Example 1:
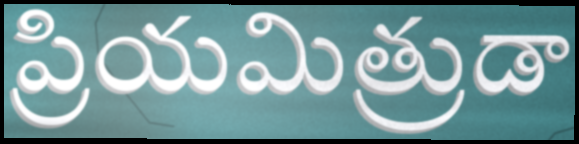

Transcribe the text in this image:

ప్రియమిత్రుడా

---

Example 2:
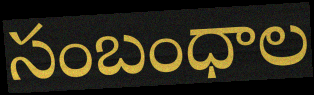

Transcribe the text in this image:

సంబంధాల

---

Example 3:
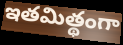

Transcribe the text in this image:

ఇతమిత్థంగా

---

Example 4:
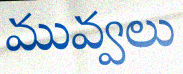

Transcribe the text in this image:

మువ్వలు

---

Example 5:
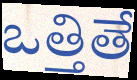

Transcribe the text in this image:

ఒత్తితే